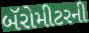
બૅરોમીટરની